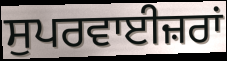
ਸੁਪਰਵਾਈਜ਼ਰਾਂ